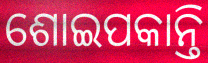
ଶୋଇପକାନ୍ତି